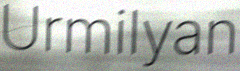
Urmilyan